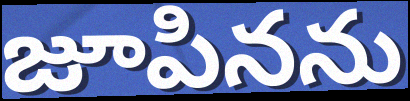
జూపినను